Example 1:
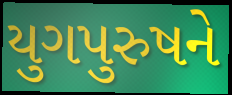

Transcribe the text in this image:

યુગપુરુષને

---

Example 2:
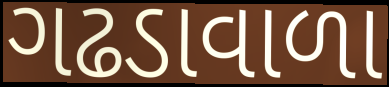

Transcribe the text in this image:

ગઢડાવાળા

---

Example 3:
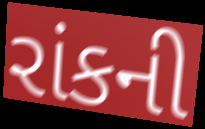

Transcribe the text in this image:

રાંકની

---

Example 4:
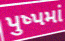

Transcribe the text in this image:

પુષ્પમાં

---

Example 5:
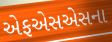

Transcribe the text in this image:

એફએસએસના